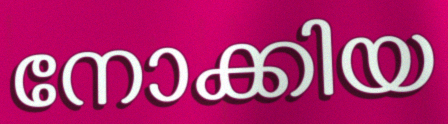
നോക്കിയ